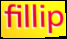
fillip